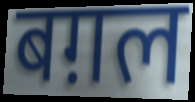
बग़ल